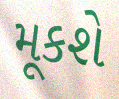
મૂકશે